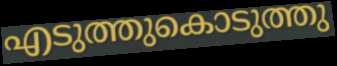
എടുത്തുകൊടുത്തു